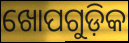
ଖୋପଗୁଡ଼ିକ